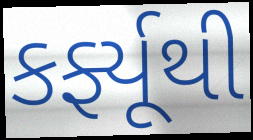
કર્ફ્યૂથી